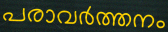
പരാവർത്തനം